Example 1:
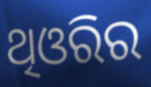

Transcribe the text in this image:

ଥିଓରିର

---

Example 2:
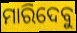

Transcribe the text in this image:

ମାରିଦେବୁ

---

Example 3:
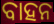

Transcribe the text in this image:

ବାହନ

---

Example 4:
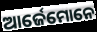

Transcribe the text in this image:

ଆର୍ଜେମୋନେ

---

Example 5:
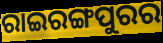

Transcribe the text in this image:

ରାଇରଙ୍ଗପୁରର